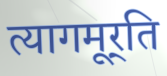
त्यागमूर्ति